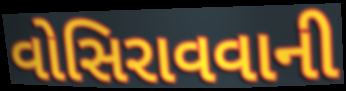
વોસિરાવવાની